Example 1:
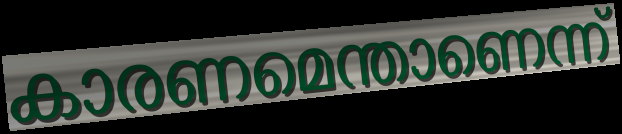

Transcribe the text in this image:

കാരണമെന്താണെന്ന്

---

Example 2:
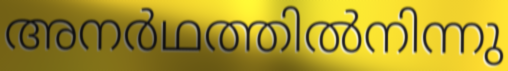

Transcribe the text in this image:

അനർഥത്തിൽനിന്നു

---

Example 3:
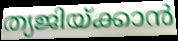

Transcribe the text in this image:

ത്യജിയ്ക്കാൻ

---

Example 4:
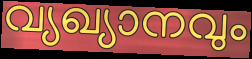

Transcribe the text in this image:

വ്യഖ്യാനവും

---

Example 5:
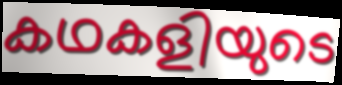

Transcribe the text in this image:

കഥകളിയുടെ